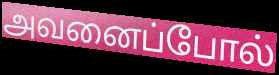
அவனைப்போல்